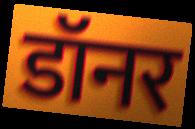
डॉनर